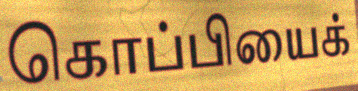
கொப்பியைக்